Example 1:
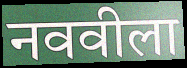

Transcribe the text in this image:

नववीला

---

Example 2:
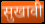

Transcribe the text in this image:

सुखावी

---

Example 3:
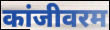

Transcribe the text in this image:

कांजीवरम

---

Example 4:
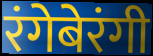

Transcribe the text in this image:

रंगेबेरंगी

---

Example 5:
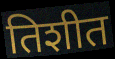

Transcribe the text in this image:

तिशीत